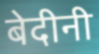
बेदीनी